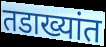
तडाख्यांत